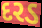
દરડ